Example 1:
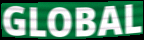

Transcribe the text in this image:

GLOBAL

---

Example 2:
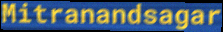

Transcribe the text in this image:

Mitranandsagar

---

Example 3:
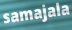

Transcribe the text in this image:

samajala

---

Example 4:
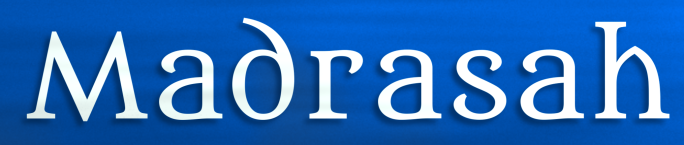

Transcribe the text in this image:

Madrasah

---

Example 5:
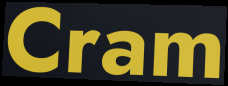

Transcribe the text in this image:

Cram